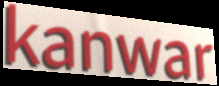
kanwar